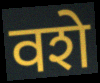
वशे